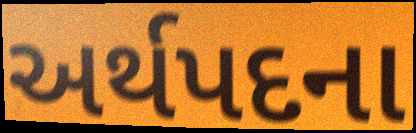
અર્થપદના